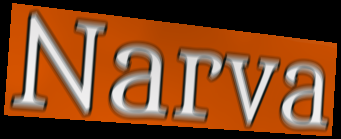
Narva